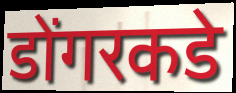
डोंगरकडे